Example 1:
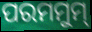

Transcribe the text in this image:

ପରମମୁମ୍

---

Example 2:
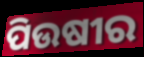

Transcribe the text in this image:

ପିଉଷୀର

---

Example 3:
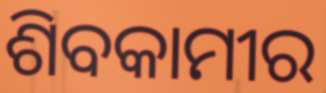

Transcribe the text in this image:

ଶିବକାମୀର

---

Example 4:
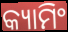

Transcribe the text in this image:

କ୍ୟାମିଂ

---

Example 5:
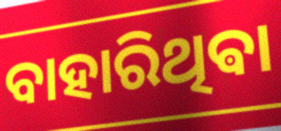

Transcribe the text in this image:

ବାହାରିଥିଵା